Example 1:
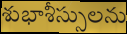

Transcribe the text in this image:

శుభాశీస్సులను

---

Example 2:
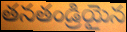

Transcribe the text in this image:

తనతండ్రియైన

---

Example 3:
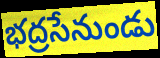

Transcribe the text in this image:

భద్రసేనుండు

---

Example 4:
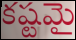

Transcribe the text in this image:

కష్టమై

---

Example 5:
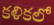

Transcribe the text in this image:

కళికలో